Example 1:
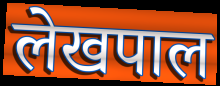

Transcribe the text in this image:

लेखपाल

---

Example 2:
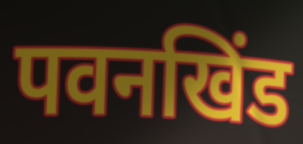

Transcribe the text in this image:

पवनखिंड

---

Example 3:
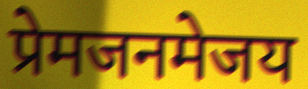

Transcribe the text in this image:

प्रेमजनमेजय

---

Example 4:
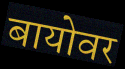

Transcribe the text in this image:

बायोवर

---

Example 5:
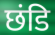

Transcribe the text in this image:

छंडि